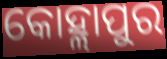
କୋହ୍ଲାପୁର